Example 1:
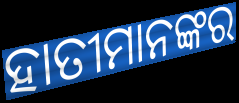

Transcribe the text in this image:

ହାତୀମାନଙ୍କର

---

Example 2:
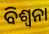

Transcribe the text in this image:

ବିଶ୍ୱନା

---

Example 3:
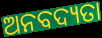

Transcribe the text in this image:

ଅନବଦ୍ୟତା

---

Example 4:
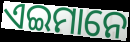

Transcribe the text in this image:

ଏଇମାନେ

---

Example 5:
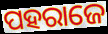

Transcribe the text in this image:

ପହରାଜେ